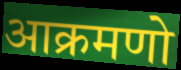
आक्रमणो